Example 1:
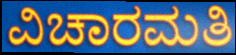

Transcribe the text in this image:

ವಿಚಾರಮತಿ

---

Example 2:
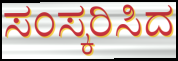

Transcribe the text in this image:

ಸಂಸ್ಕರಿಸಿದ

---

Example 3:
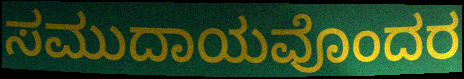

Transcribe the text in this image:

ಸಮುದಾಯವೊಂದರ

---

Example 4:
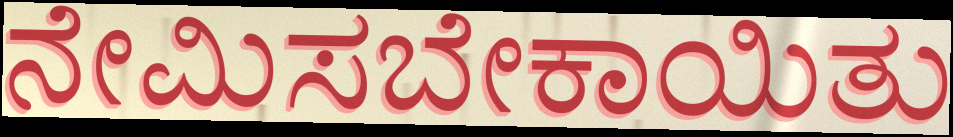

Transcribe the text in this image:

ನೇಮಿಸಬೇಕಾಯಿತು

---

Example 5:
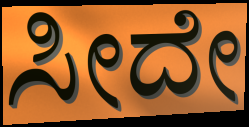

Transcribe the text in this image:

ಸೀದೇ